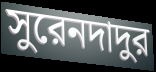
সুরেনদাদুর